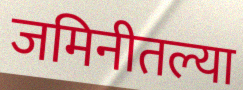
जमिनीतल्या